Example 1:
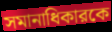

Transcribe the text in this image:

সমানাধিকারকে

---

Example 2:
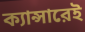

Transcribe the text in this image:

ক্যান্সারেই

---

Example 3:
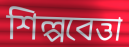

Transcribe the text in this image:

শিল্পবেত্তা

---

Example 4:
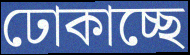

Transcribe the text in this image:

ঢোকাচ্ছে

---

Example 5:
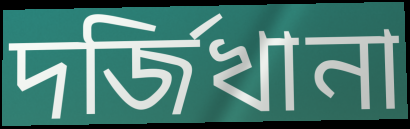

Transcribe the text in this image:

দর্জিখানা